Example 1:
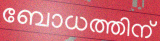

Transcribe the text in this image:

ബോധത്തിന്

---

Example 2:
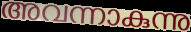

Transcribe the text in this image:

അവന്നാകുന്നു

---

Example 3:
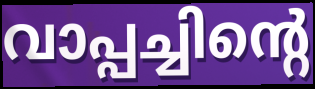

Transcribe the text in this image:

വാപ്പച്ചിന്റെ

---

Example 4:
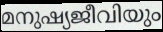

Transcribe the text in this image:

മനുഷ്യജീവിയും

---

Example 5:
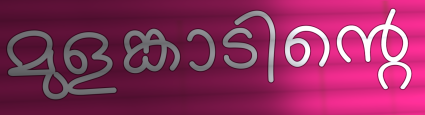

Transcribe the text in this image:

മുളങ്കാടിന്റെ